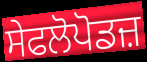
ਸੇਫਲੋਪੋਡਜ਼